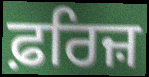
ਫ਼ਰਿਜ਼